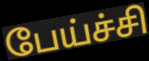
பேய்ச்சி